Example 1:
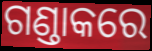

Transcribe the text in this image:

ଗଣ୍ଡାକରେ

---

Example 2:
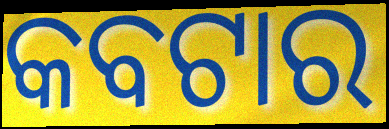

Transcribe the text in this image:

କବଟାର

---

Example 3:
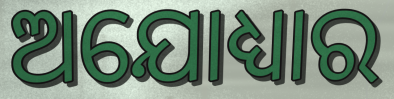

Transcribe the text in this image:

ଅଯୋଧ୍ୟାର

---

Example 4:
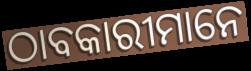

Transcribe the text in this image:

ଠାବକାରୀମାନେ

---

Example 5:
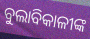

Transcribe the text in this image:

ବୁଲାବିକାଳୀଙ୍କ